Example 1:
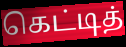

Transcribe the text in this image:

கெட்டித்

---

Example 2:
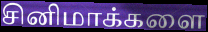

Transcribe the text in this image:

சினிமாக்களை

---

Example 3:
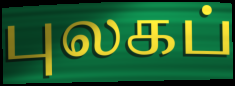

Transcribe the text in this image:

புலகப்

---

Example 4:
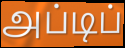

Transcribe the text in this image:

அப்டிப்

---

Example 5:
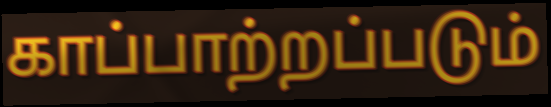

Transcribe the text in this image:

காப்பாற்றப்படும்